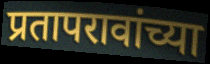
प्रतापरावांच्या